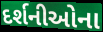
દર્શનીઓના